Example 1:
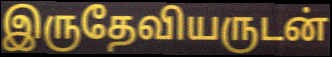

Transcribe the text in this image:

இருதேவியருடன்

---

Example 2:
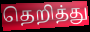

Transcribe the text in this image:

தெறித்து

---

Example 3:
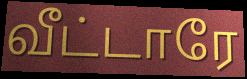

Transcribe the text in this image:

வீட்டாரே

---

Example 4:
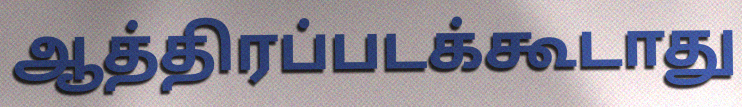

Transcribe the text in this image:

ஆத்திரப்படக்கூடாது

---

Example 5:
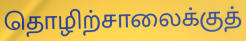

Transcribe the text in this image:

தொழிற்சாலைக்குத்